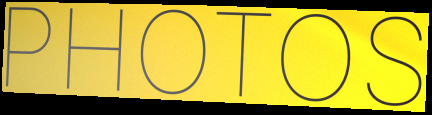
PHOTOS